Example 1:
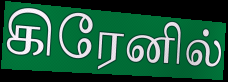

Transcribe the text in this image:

கிரேனில்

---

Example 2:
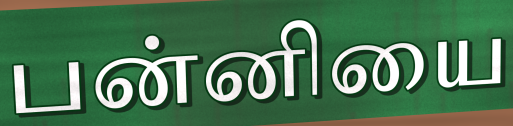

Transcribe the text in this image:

பன்னியை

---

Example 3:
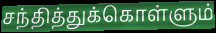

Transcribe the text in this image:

சந்தித்துக்கொள்ளும்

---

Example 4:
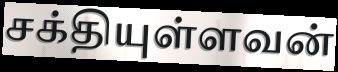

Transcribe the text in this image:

சக்தியுள்ளவன்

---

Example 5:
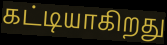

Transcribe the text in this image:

கட்டியாகிறது